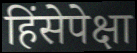
हिंसेपेक्षा